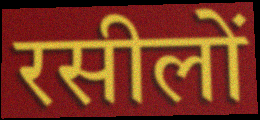
रसीलों